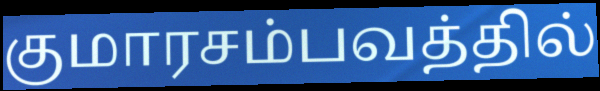
குமாரசம்பவத்தில்